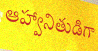
ఆహ్వానితుడిగా